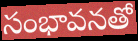
సంభావనతో